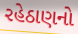
રહેઠાણનો